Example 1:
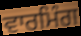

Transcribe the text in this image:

ਵਾਰਮਿੰਗ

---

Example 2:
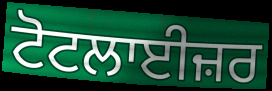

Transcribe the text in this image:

ਟੋਟਲਾਈਜ਼ਰ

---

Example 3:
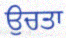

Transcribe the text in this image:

ਉਚਤਾ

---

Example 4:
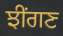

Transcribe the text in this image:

ਝੀਂਗਣ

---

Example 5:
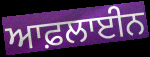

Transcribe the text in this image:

ਆਫ਼ਲਾਈਨ